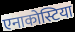
एनाकोस्टिया